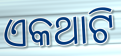
ଏକଥାଟି